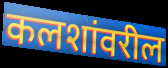
कलशांवरील